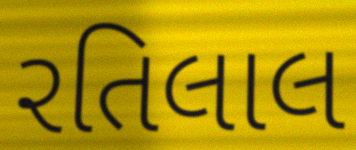
રતિલાલ